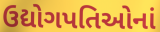
ઉદ્યોગપતિઓનાં